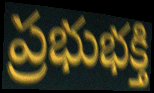
ప్రభుభక్తి